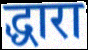
द्धारा